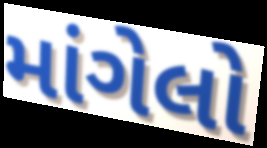
માંગેલો